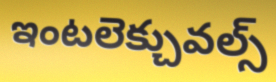
ఇంటలెక్చువల్స్